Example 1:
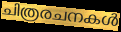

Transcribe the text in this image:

ചിത്രരചനകൾ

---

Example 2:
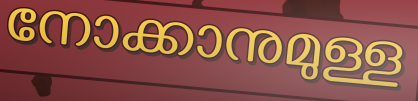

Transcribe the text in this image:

നോക്കാനുമുള്ള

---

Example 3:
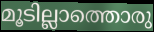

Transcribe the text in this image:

മൂടില്ലാത്തൊരു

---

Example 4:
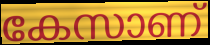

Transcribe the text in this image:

കേസാണ്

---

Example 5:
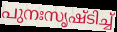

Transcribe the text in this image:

പുനഃസൃഷ്ടിച്ച്